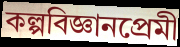
কল্পবিজ্ঞানপ্রেমী